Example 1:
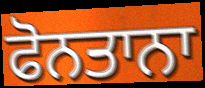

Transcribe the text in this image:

ਫੋਨਤਾਨਾ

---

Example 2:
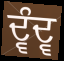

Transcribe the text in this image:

ਦ੍ਵੰਦ੍ਵ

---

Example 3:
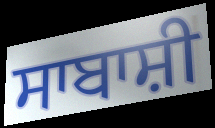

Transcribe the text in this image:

ਸਾਬਾਸ਼ੀ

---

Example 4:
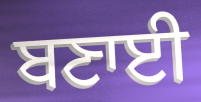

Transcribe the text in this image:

ਬਣਾਈ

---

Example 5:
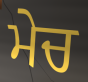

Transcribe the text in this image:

ਮੇਚ